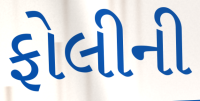
ફોલીની